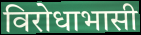
विरोधाभासी